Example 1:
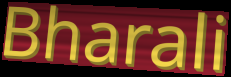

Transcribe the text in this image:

Bharali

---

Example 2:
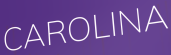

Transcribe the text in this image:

CAROLINA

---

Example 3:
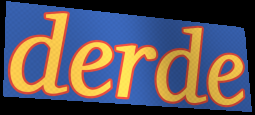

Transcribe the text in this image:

derde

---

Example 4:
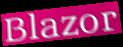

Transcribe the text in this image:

Blazor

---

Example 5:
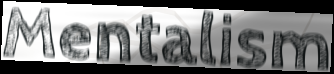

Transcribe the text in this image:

Mentalism